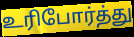
உரிபோர்த்து